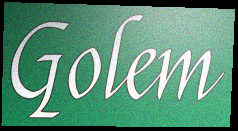
Golem